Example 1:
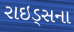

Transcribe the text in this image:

રાઇડ્સના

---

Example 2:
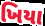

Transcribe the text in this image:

ખિયા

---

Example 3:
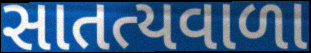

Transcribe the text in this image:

સાતત્યવાળા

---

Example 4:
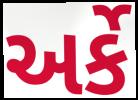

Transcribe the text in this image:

અર્કે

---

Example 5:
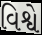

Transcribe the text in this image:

વિશ્વે